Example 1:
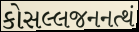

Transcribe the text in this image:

કોસલ્લજનનત્થં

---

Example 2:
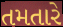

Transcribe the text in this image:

તમતારે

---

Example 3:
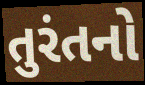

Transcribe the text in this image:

તુરંતનો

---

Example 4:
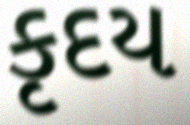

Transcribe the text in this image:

કૃદય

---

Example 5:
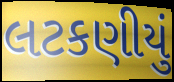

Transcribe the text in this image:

લટકણીયું